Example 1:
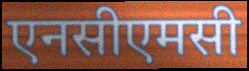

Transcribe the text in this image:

एनसीएमसी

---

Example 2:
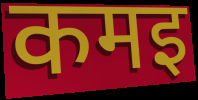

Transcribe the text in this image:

कमइ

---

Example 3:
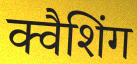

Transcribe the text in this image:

क्वैशिंग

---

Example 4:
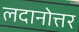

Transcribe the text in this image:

लदानोत्तर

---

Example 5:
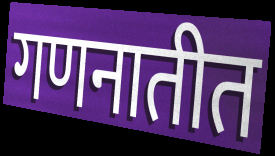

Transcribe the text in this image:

गणनातीत